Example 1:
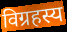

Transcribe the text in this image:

विग्रहस्य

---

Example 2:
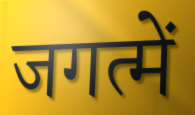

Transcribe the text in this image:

जगत्में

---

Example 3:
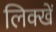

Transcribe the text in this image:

लिक्खें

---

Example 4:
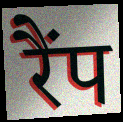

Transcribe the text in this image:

रैंप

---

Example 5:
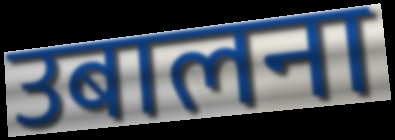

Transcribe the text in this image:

उबालना